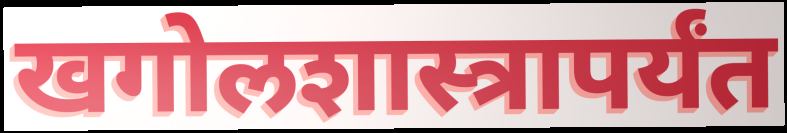
खगोलशास्त्रापर्यंत